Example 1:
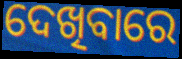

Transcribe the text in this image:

ଦେଖିବାରେ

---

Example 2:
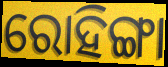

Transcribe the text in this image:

ରୋହିଙ୍ଗା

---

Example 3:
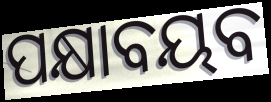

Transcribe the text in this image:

ପକ୍ଷାବୟବ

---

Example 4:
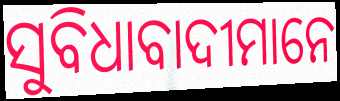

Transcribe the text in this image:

ସୁବିଧାବାଦୀମାନେ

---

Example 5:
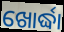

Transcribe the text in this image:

ଖୋର୍ଦ୍ଧା